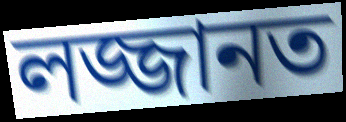
লজ্জানত